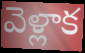
వెళ్లాక